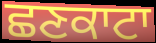
ਛਣਕਾਟਾ